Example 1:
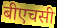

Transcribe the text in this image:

बीएचसी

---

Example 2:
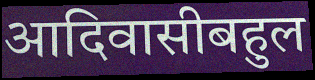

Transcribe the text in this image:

आदिवासीबहुल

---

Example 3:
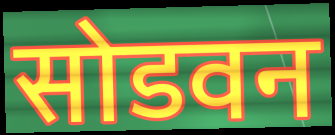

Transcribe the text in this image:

सोडवन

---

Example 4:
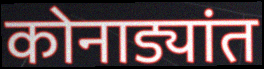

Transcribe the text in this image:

कोनाड्यांत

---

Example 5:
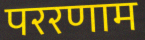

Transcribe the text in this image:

पररणाम